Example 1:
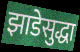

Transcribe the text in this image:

झाडेसुद्धा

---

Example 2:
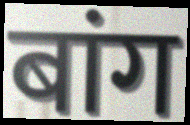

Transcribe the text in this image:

बांग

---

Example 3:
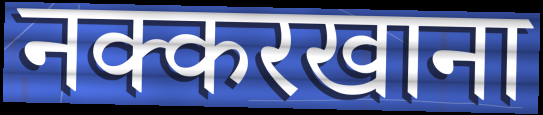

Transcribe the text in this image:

नक्करखाना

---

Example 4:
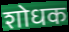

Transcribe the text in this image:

शोधक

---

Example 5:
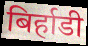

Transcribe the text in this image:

बिर्हाडी